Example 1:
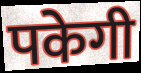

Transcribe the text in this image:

पकेगी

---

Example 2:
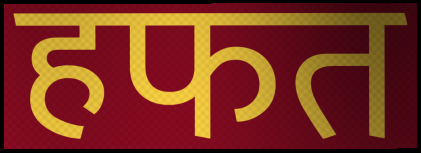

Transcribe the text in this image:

हफत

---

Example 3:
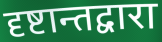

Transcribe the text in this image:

दृष्टान्तद्वारा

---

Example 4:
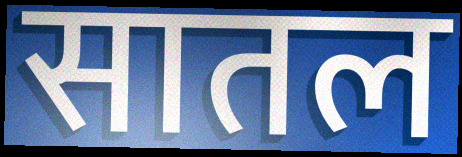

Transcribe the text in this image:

सातल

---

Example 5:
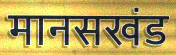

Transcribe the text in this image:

मानसखंड